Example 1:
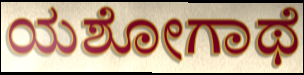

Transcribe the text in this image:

ಯಶೋಗಾಥೆ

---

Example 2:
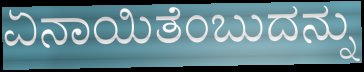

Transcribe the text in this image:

ಏನಾಯಿತೆಂಬುದನ್ನು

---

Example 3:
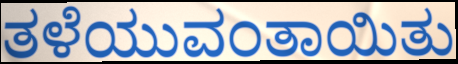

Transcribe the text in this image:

ತಳೆಯುವಂತಾಯಿತು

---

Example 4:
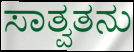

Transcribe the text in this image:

ಸಾತ್ವತನು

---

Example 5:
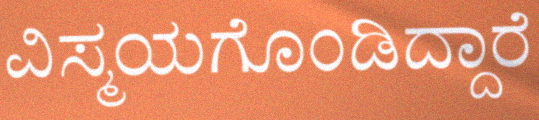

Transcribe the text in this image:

ವಿಸ್ಮಯಗೊಂಡಿದ್ದಾರೆ